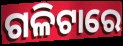
ଗଳିଟାରେ